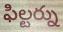
ఫిల్టర్ను